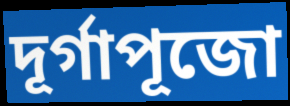
দূর্গাপূজো